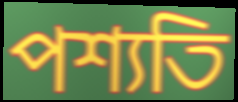
পশ্যতি